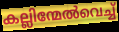
കല്ലിന്മേൽവെച്ച്